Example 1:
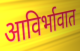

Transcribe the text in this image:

आविर्भावात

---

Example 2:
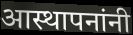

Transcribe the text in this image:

आस्थापनांनी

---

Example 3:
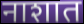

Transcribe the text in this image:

नाशात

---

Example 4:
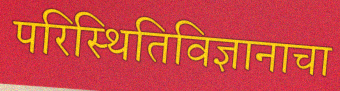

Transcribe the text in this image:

परिस्थितिविज्ञानाचा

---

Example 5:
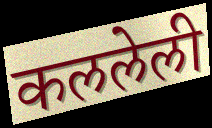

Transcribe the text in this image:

कललेली